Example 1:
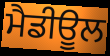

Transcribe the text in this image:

ਮੈਡੀਊਲ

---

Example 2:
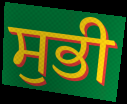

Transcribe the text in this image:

ਸੁਭੀ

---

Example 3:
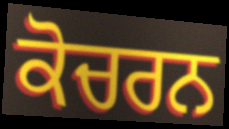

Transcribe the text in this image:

ਕੋਚਰਨ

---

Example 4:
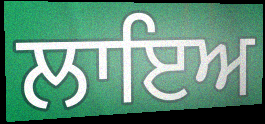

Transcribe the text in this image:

ਲਾਇਅ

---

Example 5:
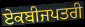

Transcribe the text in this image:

ਏਕਬੀਜਪਤਰੀ